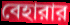
বেহারার